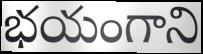
భయంగాని